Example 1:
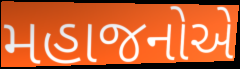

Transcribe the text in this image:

મહાજનોએ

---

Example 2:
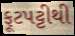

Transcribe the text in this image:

ફૂટપટ્ટીથી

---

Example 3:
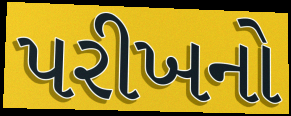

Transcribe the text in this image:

પરીખનો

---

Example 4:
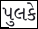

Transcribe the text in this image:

પુલકે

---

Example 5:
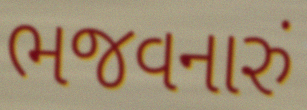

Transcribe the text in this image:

ભજવનારું